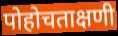
पोहोचताक्षणी